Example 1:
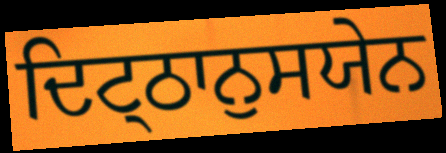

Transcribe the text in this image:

ਦਿਟ੍ਠਾਨੁਸਯੇਨ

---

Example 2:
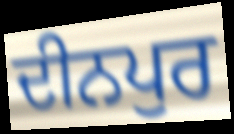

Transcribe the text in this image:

ਦੀਨਪੁਰ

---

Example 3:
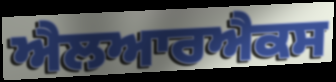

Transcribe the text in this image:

ਐਲਆਰਐਕਸ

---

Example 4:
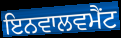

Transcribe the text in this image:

ਇਨਵਾਲਵਮੈਂਟ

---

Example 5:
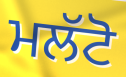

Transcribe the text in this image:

ਮਲੱਟੋ